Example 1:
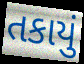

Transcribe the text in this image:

તકાયું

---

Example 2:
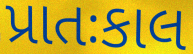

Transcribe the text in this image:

પ્રાતઃકાલ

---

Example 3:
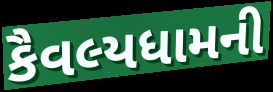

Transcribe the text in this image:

કૈવલ્યધામની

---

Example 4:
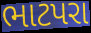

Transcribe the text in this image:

ભાટપરા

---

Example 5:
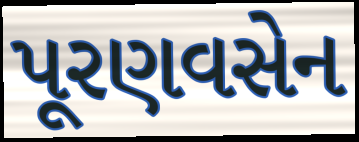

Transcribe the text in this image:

પૂરણવસેન